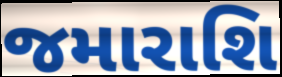
જમારાશિ